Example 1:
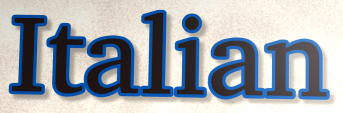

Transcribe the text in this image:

Italian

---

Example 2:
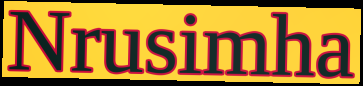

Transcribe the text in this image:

Nrusimha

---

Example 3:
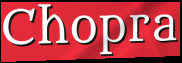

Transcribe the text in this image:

Chopra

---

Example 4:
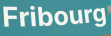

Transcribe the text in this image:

Fribourg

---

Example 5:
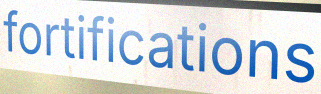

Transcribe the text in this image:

fortifications